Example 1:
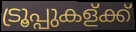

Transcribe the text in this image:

ട്രൂപ്പുകള്ക്ക്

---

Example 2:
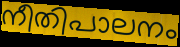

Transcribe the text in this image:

നീതിപാലനം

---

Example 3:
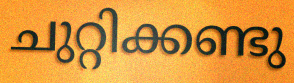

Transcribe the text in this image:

ചുറ്റിക്കണ്ടു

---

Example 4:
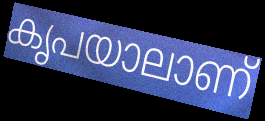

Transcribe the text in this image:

കൃപയാലാണ്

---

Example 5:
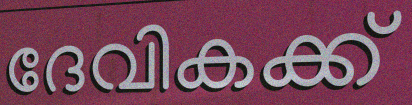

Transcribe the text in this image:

ദേവികക്ക്